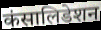
कंसालिडेशन